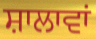
ਸ਼ਾਲਾਵਾਂ